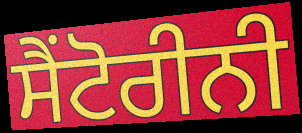
ਸੈਂਟੋਰੀਨੀ